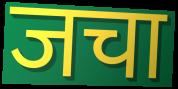
जचा